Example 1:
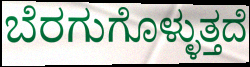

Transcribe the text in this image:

ಬೆರಗುಗೊಳ್ಳುತ್ತದೆ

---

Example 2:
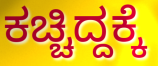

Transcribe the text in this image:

ಕಚ್ಚಿದ್ದಕ್ಕೆ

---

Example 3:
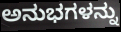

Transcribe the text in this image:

ಅನುಭಗಳನ್ನು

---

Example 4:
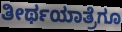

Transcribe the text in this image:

ತೀರ್ಥಯಾತ್ರೆಗೂ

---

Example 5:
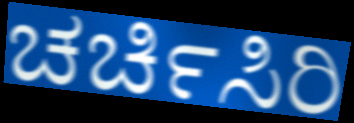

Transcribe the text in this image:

ಚರ್ಚಿಸಿರಿ